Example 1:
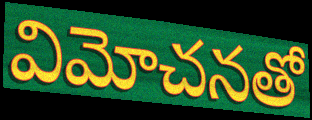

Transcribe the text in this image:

విమోచనతో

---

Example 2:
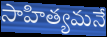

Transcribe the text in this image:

సాహిత్యమనే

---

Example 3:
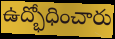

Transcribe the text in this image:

ఉద్భోధించారు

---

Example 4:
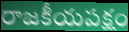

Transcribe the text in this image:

రాజకీయపక్షం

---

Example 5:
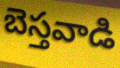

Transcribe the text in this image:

బెస్తవాడి